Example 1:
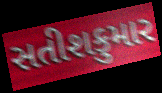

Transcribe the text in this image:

સતીશકુમાર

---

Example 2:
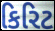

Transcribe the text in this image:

કિરિટ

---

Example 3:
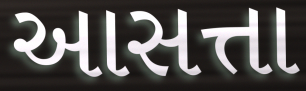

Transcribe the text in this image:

આસત્તા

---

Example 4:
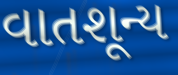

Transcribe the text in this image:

વાતશૂન્ય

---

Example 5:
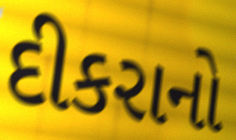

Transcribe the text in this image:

દીકરાનો